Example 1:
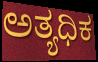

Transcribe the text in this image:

ಅತ್ಯಧಿಕ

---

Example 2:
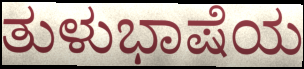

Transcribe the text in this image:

ತುಳುಭಾಷೆಯ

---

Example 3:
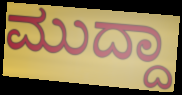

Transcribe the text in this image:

ಮುದ್ದಾ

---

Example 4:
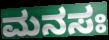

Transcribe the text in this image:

ಮನಸಃ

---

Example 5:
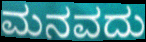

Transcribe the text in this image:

ಮನವದು